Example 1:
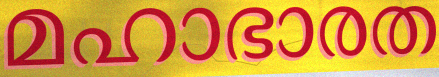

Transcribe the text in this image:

മഹാഭാരത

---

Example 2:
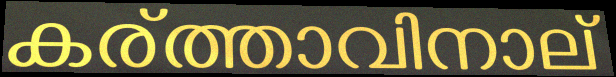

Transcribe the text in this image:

കര്ത്താവിനാല്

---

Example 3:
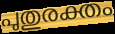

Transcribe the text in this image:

പുതുരക്തം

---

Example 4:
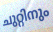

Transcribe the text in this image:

ചുറ്റിനും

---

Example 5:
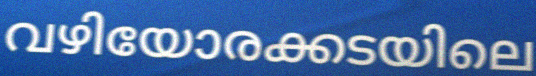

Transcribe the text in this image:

വഴിയോരക്കടയിലെ